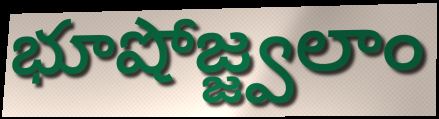
భూషోజ్జ్వలాం